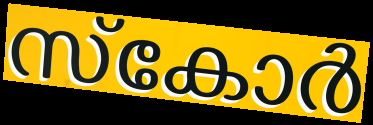
സ്‌കോർ